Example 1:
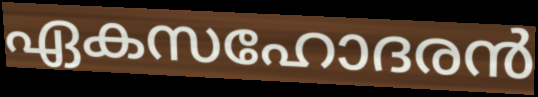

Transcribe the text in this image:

ഏകസഹോദരൻ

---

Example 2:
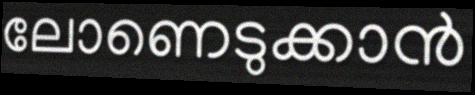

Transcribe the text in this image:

ലോണെടുക്കാൻ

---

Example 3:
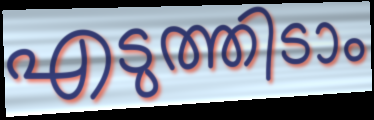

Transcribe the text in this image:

എടുത്തിടാം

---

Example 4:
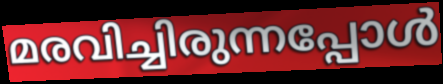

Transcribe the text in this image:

മരവിച്ചിരുന്നപ്പോൾ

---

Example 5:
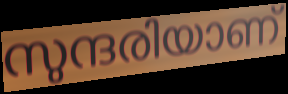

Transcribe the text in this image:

സുന്ദരിയാണ്